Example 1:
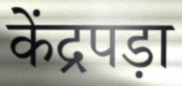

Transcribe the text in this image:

केंद्रपड़ा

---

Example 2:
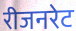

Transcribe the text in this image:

रीजनरेट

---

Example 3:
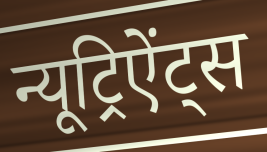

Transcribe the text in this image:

न्यूट्रिऐंट्स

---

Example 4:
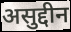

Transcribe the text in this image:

असुद्दीन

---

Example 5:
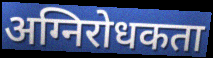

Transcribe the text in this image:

अग्निरोधकता